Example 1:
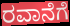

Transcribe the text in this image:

ರವಾನೆಗೆ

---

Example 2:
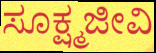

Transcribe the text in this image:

ಸೂಕ್ಷ್ಮಜೀವಿ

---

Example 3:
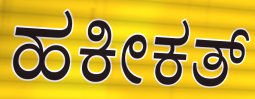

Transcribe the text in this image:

ಹಕೀಕತ್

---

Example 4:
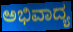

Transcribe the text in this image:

ಅಭಿವಾದ್ಯ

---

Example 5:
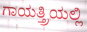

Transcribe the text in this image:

ಗಾಯತ್ತ್ರಿಯಲ್ಲಿ